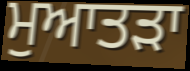
ਮੁਆਤੜਾ